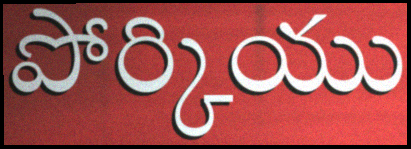
పోర్కియు